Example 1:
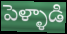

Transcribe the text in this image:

పెళ్ళాడి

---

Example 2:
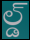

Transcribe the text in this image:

ల్డ్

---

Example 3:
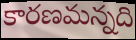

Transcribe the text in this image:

కారణమన్నది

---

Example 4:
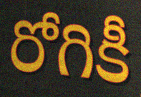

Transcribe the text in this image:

రోగికీ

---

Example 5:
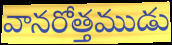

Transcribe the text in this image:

వానరోత్తముడు